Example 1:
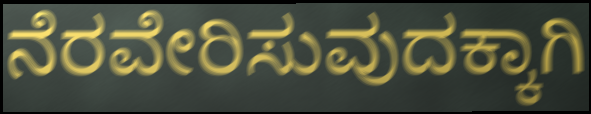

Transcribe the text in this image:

ನೆರವೇರಿಸುವುದಕ್ಕಾಗಿ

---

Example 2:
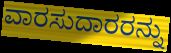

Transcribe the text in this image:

ವಾರಸುದಾರರನ್ನು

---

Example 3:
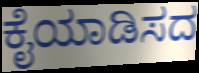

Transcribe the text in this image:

ಕೈಯಾಡಿಸದ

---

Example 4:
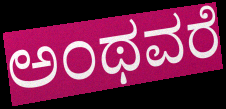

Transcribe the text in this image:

ಅಂಥವರೆ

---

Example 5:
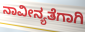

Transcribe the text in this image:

ನಾವೀನ್ಯತೆಗಾಗಿ